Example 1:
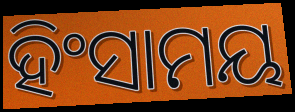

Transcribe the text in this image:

ହିଂସାମୟ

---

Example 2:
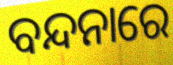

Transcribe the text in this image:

ବନ୍ଦନାରେ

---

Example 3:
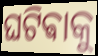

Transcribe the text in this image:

ଘଟିଵାକୁ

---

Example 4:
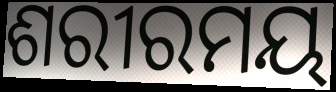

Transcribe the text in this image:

ଶରୀରମୟ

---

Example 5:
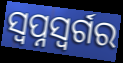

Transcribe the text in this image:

ସ୍ୱପ୍ନସ୍ୱର୍ଗର